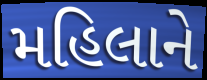
મહિલાને